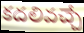
కదలివచ్చే